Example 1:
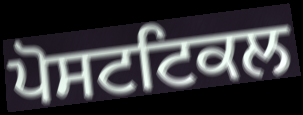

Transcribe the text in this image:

ਪੋਸਟਟਿਕਲ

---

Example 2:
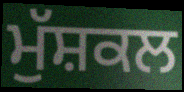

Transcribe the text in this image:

ਮੁੱਸ਼ਕਲ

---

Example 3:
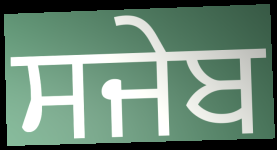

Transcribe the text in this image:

ਸਜੇਬ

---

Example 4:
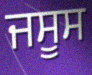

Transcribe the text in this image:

ਜਸੂਸ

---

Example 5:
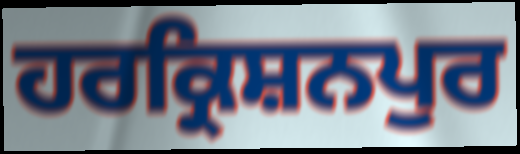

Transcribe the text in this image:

ਹਰਕ੍ਰਿਸ਼ਨਪੁਰ